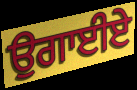
ਉਗਾਈਏ